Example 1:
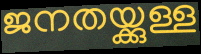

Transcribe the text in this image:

ജനതയ്ക്കുള്ള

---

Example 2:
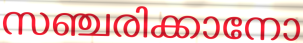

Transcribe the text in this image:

സഞ്ചരിക്കാനോ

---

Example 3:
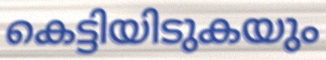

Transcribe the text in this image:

കെട്ടിയിടുകയും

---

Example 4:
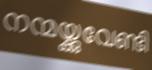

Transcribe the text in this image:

നന്മയ്ക്കുവേണ്ടി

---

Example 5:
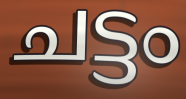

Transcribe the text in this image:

ചട്ടം